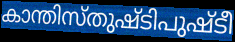
കാന്തിസ്തുഷ്ടിപുഷ്ടീ